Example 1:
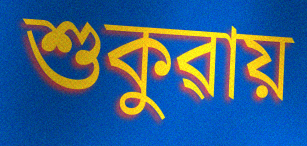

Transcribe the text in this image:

শুকুৱায়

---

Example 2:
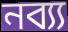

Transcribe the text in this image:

নব্য্য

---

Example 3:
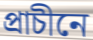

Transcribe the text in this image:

প্ৰাচীনে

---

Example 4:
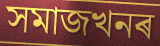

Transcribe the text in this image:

সমাজখনৰ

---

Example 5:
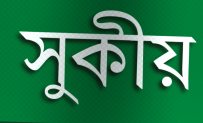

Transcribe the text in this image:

সুকীয়